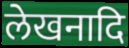
लेखनादि